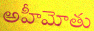
అహీమోతు